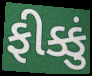
ફીક્કું